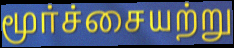
மூர்ச்சையற்று